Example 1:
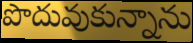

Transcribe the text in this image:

పొదువుకున్నాను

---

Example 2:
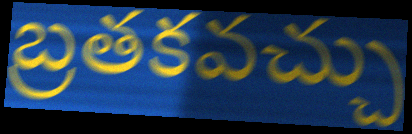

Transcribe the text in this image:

బ్రతకవచ్చు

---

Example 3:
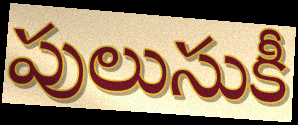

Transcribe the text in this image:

పులుసుకీ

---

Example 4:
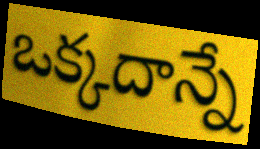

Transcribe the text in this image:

ఒక్కదాన్నే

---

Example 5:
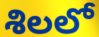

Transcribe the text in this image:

శిలలో